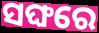
ସଙ୍ଘରେ